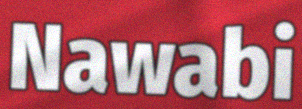
Nawabi